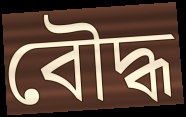
বৌদ্ধ